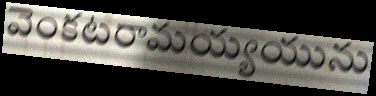
వెంకటరామయ్యయును